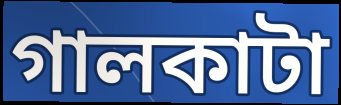
গালকাটা